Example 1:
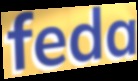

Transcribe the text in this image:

feda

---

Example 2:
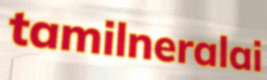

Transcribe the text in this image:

tamilneralai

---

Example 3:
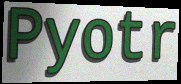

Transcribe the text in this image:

Pyotr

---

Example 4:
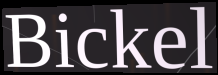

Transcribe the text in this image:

Bickel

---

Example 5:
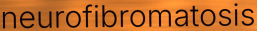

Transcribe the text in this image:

neurofibromatosis